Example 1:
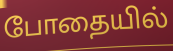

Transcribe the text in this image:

போதையில்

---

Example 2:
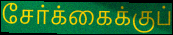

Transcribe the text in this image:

சேர்க்கைக்குப்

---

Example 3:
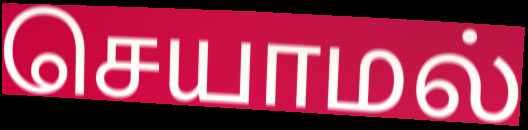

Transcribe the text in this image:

செயாமல்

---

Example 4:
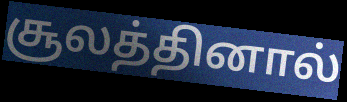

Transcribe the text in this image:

சூலத்தினால்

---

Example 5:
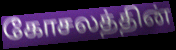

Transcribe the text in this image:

கோசலத்தின்